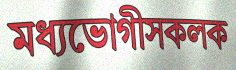
মধ্যভোগীসকলক